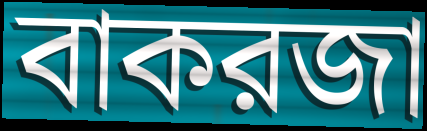
বাকরজা